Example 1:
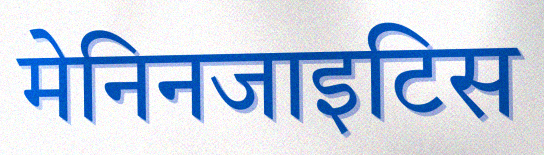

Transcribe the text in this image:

मेनिनजाइटिस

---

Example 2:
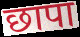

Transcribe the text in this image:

छापा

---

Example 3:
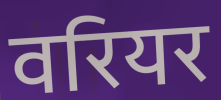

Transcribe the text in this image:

वरियर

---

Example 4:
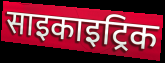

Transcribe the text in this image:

साइकाइट्रिक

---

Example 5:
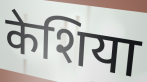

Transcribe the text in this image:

केशिया